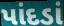
પાંદડાં